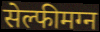
सेल्फीमग्न